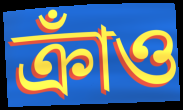
ক্রাঁও